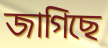
জাগিছে